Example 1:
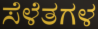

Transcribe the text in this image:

ಸೆಳೆತಗಳ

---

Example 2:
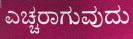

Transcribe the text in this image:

ಎಚ್ಚರಾಗುವುದು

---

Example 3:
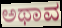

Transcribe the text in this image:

ಅಥಾವ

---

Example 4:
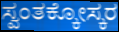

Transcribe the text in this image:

ಸ್ವಂತಕ್ಕೋಸ್ಕರ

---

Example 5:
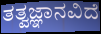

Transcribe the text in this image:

ತತ್ವಜ್ಞಾನವಿದೆ